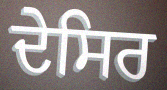
ਦੇਸਿਰ